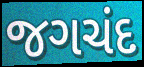
જગચંદ